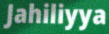
Jahiliyya